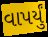
વાપર્યું